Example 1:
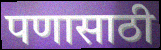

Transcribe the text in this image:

पणासाठी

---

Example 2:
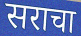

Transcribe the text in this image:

सराचा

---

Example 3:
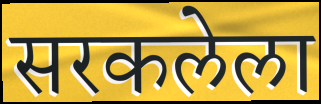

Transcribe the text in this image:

सरकलेला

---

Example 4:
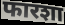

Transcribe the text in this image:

फारशा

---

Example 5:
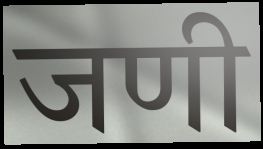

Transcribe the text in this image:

जणी